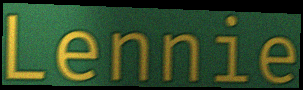
Lennie